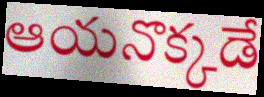
ఆయనొక్కడే